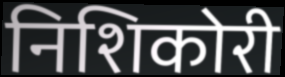
निशिकोरी